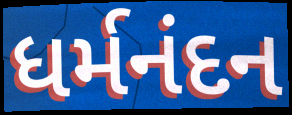
ધર્મનંદન